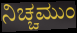
ನಿಚ್ಚಮುಂ